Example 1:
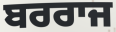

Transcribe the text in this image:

ਬਰਰਾਜ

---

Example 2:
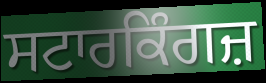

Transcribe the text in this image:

ਸਟਾਰਕਿੰਗਜ਼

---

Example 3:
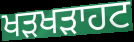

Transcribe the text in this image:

ਖੜਖੜਾਹਟ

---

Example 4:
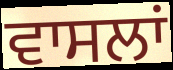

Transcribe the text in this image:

ਵਾਸਲਾਂ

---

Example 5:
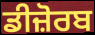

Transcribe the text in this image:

ਡੀਜ਼ੋਰਬ